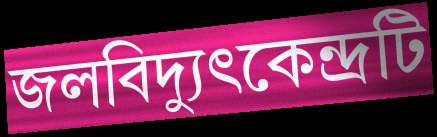
জলবিদ্যুৎকেন্দ্রটি